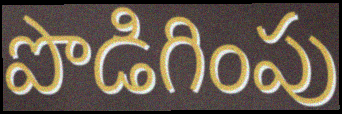
పొడిగింపు